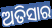
ଅତିସାର